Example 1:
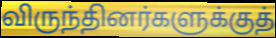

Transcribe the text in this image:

விருந்தினர்களுக்குத்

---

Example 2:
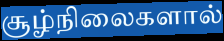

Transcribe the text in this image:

சூழ்நிலைகளால்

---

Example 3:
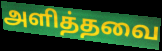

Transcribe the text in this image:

அளித்தவை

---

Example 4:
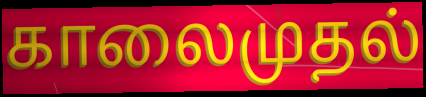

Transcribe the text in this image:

காலைமுதல்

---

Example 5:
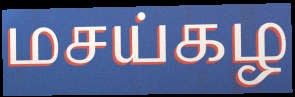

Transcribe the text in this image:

மசய்கழ